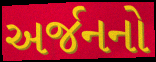
અર્જનનો